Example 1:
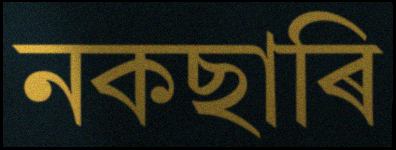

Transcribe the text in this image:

নকছাৰি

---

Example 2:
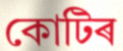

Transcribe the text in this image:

কোটিৰ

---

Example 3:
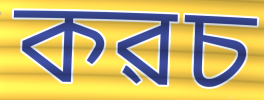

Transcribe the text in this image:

কৱচ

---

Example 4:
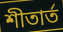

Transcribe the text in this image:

শীতাৰ্ত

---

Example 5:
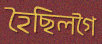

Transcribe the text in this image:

হৈছিলগৈ